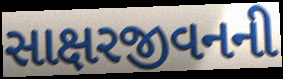
સાક્ષરજીવનની